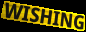
WISHING